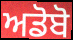
ਅਡੋਬੋ